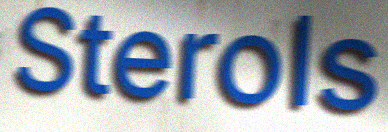
Sterols